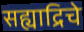
सह्याद्रिचे